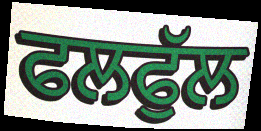
ਫਲਫੁੱਲ